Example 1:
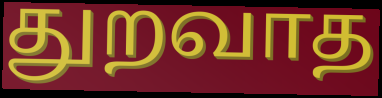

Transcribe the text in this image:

துறவாத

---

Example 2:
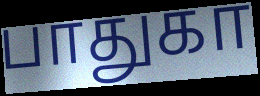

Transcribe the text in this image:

பாதுகா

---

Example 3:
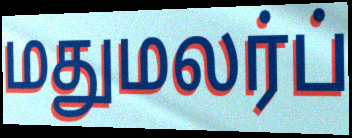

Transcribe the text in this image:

மதுமலர்ப்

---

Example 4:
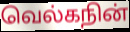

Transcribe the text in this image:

வெல்கநின்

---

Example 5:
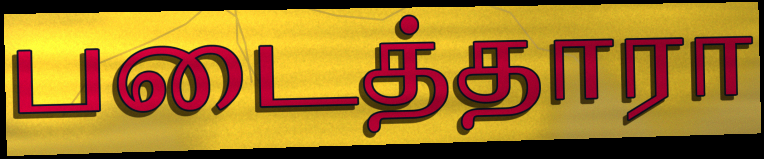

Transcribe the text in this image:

படைத்தாரா